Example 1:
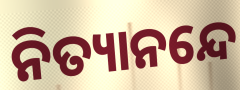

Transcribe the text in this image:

ନିତ୍ୟାନନ୍ଦେ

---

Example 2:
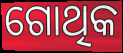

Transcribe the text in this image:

ଗୋଥିକ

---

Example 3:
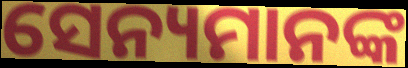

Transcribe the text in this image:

ସେନ୍ୟମାନଙ୍କ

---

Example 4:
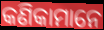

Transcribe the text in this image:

କଣିକାମାନେ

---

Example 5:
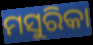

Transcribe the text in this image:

ମସୁରିକା